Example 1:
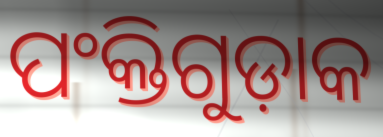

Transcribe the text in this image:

ପଂକ୍ତିଗୁଡ଼ାକ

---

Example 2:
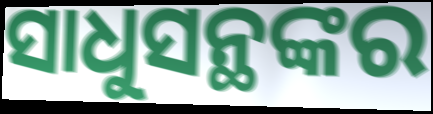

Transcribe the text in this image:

ସାଧୁସନ୍ଥଙ୍କର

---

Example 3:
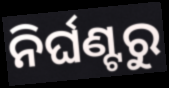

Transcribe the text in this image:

ନିର୍ଘଣ୍ଟରୁ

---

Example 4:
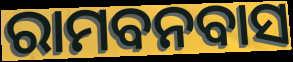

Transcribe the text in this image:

ରାମବନବାସ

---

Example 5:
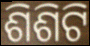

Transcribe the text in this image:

ଶିଶିଟି